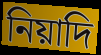
নিয়াদি